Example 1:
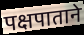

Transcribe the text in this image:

पक्षपाताने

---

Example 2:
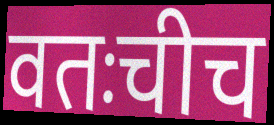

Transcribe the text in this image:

वतःचीच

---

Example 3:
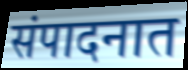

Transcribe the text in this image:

संपादनात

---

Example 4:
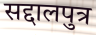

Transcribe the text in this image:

सद्दालपुत्र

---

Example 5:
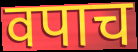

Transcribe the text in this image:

वपाच